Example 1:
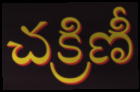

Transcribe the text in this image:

చక్రిణీ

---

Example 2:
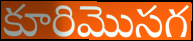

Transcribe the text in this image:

కూరిమొసగ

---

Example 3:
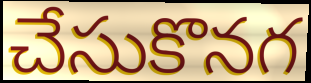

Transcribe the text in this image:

చేసుకొనగ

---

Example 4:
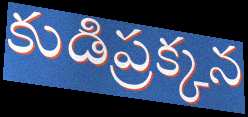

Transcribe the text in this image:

కుడిప్రక్కన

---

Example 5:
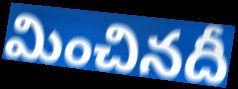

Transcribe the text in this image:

మించినదీ